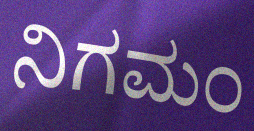
ನಿಗಮಂ